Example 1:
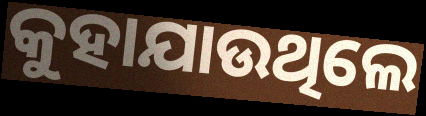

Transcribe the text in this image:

କୁହାଯାଉଥିଲେ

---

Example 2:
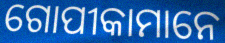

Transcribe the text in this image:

ଗୋପୀକାମାନେ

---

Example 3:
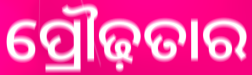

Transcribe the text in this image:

ପ୍ରୌଢ଼ତାର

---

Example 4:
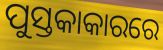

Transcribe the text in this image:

ପୁସ୍ତକାକାରରେ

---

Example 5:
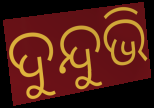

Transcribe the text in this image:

ଦୁନ୍ଦୁଭି